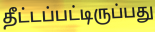
தீட்டப்பட்டிருப்பது